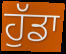
ਹੁੱਡਾ